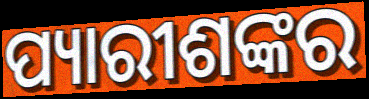
ପ୍ୟାରୀଶଙ୍କର